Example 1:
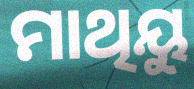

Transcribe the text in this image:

ମାଥିୟୁ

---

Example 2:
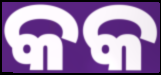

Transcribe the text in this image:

କକ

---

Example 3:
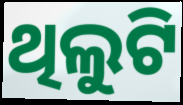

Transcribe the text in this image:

ଥିଲୁଟି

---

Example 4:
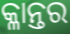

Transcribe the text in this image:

କ୍ଳାନ୍ତର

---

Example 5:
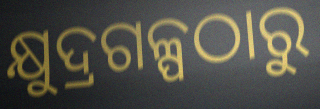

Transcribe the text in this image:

କ୍ଷୁଦ୍ରଗଳ୍ପଠାରୁ